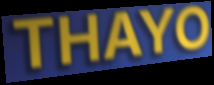
THAYO